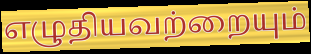
எழுதியவற்றையும்